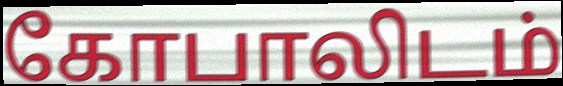
கோபாலிடம்